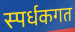
स्पर्धकगत